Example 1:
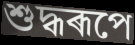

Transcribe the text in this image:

শুদ্ধৰূপে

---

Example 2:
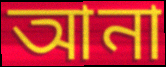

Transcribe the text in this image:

আনা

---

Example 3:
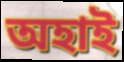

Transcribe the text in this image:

অহাই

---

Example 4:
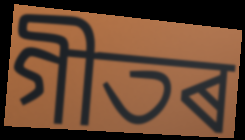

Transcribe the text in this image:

গীতৰ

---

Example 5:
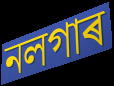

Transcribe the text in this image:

নলগাৰ